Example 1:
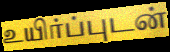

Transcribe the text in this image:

உயிர்ப்புடன்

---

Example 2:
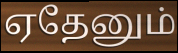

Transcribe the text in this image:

ஏதேனும்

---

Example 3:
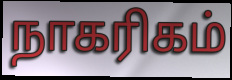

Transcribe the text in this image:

நாகரிகம்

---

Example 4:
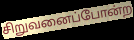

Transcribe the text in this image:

சிறுவனைப்போன்ற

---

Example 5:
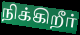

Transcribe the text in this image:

நிக்கிறீர்